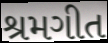
શ્રમગીત